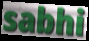
sabhi